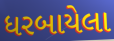
ધરબાયેલા